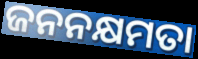
ଜନନକ୍ଷମତା